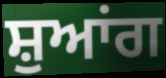
ਸ਼ੁਆਂਗ